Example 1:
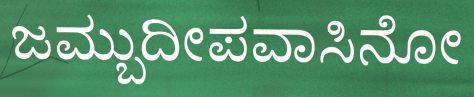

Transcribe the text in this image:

ಜಮ್ಬುದೀಪವಾಸಿನೋ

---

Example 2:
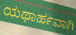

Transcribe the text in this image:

ಯಥಾರ್ಹವಾಗಿ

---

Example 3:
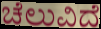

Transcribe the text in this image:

ಚೆಲುವಿದೆ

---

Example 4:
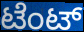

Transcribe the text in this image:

ಟೆಂಟ್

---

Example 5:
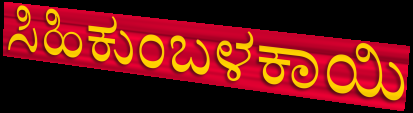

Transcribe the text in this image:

ಸಿಹಿಕುಂಬಳಕಾಯಿ